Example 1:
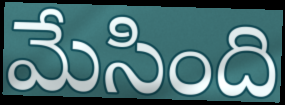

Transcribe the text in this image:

మేసింది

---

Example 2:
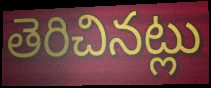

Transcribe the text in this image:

తెరిచినట్లు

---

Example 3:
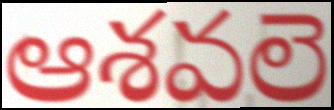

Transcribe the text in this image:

ఆశవలె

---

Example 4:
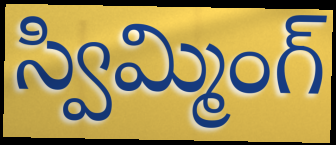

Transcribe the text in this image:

స్విమ్మింగ్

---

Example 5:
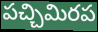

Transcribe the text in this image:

పచ్చిమిరప